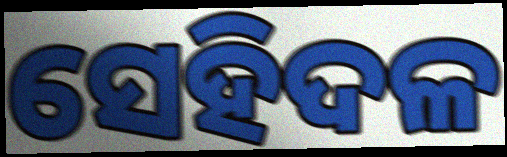
ସେହିଦଳ